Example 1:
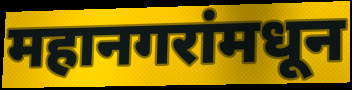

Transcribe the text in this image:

महानगरांमधून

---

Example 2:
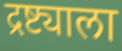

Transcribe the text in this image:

द्रष्ट्याला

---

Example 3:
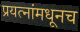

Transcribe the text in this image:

प्रयत्नांमधूनच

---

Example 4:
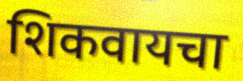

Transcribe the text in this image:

शिकवायचा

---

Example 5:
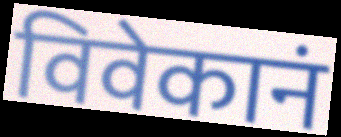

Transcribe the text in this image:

विवेकानं